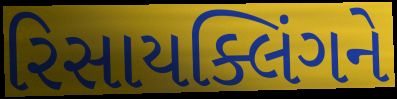
રિસાયક્લિંગને